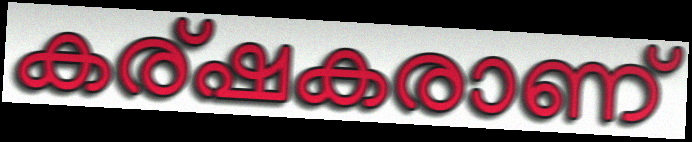
കര്ഷകരാണ്